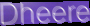
Dheere